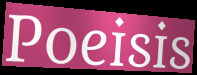
Poeisis